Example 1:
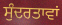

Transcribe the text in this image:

ਸੁੰਦਰਤਾਵਾਂ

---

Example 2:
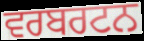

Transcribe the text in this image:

ਵਰਬਰਟਨ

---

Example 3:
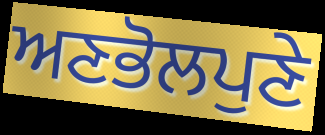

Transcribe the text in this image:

ਅਣਭੋਲਪੁਣੇ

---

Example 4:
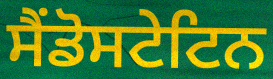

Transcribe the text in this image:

ਸੈਂਡੋਸਟੇਟਿਨ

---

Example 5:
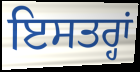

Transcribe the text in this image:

ਇਸਤਰ੍ਹਾਂ